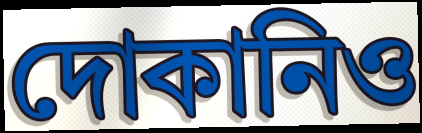
দোকানিও